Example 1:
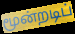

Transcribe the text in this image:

மூன்றடிப்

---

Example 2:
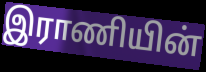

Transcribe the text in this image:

இராணியின்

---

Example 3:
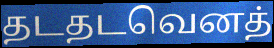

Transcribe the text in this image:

தடதடவெனத்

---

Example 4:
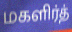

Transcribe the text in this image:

மகளிர்த்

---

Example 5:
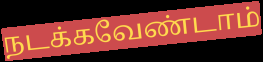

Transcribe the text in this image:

நடக்கவேண்டாம்